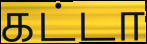
கட்டா